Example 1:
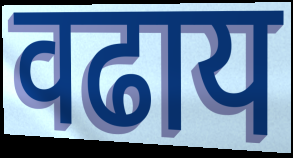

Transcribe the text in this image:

वढाय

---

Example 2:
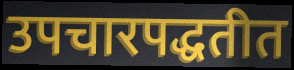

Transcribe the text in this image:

उपचारपद्धतीत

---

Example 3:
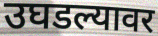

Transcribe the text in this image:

उघडल्यावर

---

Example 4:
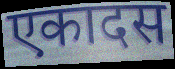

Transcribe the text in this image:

एकादस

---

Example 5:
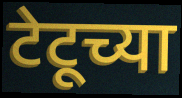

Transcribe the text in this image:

टेटूच्या